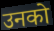
उनको